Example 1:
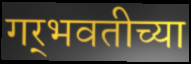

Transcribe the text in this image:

गर्भवतीच्या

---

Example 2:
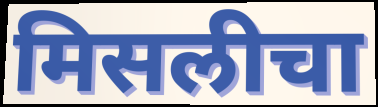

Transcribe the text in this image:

मिसलीचा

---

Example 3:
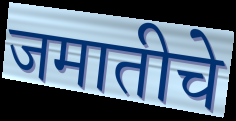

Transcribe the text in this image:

जमातीचे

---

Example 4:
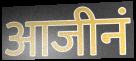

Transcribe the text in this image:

आजीनं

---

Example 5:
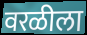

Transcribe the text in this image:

वरळीला